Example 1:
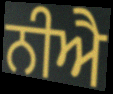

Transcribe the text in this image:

ਨੀਐ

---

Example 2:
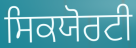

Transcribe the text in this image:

ਸਿਕਯੋਰਟੀ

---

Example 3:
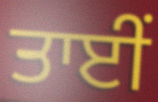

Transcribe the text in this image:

ਤਾਈਂ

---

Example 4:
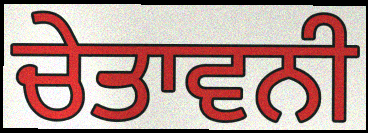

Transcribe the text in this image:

ਚੇਤਾਵਨੀ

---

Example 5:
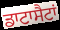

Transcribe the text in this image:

ਡਾਟਾਸੈਟਾਂ